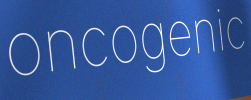
oncogenic